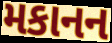
મકાનન